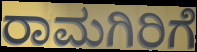
ರಾಮಗಿರಿಗೆ